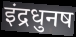
इंद्रधुनष